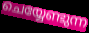
ചെയ്യേണ്ടുന്ന